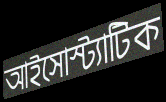
আইসোস্ট্যাটিক